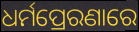
ଧର୍ମପ୍ରେରଣାରେ